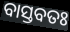
ବାସ୍ତବତଃ